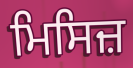
ਮਿਸਿਜ਼